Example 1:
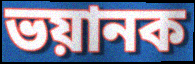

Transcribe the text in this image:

ভয়ানক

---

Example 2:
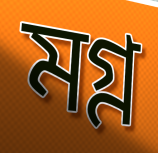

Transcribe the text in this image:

মগ্ন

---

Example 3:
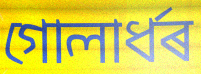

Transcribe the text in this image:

গোলাৰ্ধৰ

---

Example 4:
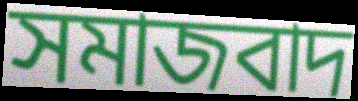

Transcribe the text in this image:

সমাজবাদ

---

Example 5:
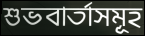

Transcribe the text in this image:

শুভবাৰ্তাসমূহ